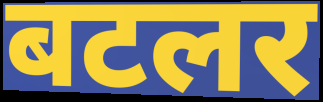
बटलर